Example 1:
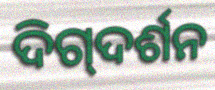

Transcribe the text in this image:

ଦିଗ୍‍ଦର୍ଶନ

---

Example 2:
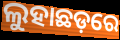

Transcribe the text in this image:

ଲୁହାଛଡ଼ରେ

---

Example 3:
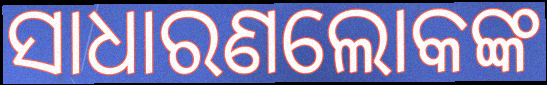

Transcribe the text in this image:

ସାଧାରଣଲୋକଙ୍କ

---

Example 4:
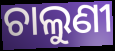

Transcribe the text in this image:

ଚାଲୁଣୀ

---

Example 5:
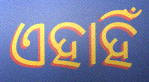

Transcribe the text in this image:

ଏହାହିଁ